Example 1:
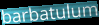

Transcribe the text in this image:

barbatulum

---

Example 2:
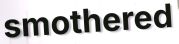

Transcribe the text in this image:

smothered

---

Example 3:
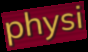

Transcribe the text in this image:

physi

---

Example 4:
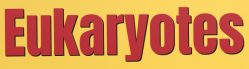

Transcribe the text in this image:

Eukaryotes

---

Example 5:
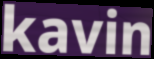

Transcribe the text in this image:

kavin